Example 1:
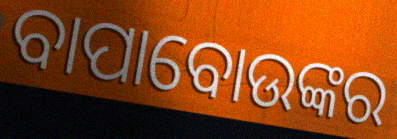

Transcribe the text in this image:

ବାପାବୋଉଙ୍କର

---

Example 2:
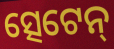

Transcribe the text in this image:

ତ୍ସେଟେନ୍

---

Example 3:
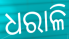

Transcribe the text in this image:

ଧରାଳି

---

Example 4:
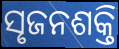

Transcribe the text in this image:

ସୃଜନଶକ୍ତି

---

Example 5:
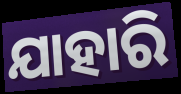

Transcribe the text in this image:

ଯାହାରି